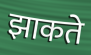
झाकते